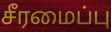
சீரமைப்பு